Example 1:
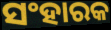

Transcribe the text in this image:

ସଂହାରକ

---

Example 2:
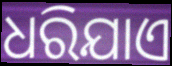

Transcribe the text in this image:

ଧରିଯାଏ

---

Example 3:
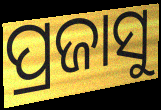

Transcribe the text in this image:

ପ୍ରଜାସୁ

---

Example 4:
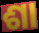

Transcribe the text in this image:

ଶା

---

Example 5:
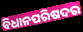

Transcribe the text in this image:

ବିଧାନପରିଷଦର